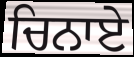
ਚਿਨਾਏ